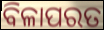
ବିଳାପରତ